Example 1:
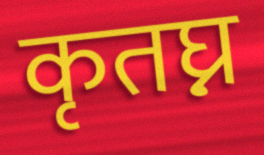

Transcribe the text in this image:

कृतघ्न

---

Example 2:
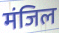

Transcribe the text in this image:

मंजिल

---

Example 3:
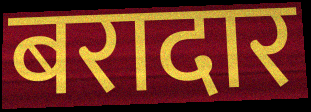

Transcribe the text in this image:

बरादार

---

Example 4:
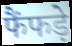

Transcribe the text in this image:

फैंफड़े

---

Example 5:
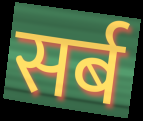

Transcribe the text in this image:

सर्ब